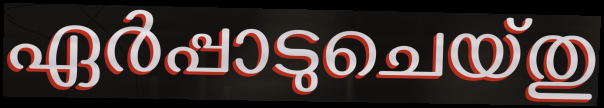
ഏർപ്പാടുചെയ്തു